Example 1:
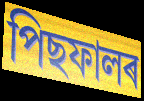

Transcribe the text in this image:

পিছফালৰ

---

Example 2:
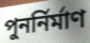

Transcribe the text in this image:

পুনৰ্নিৰ্মাণ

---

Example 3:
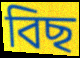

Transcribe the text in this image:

বিছ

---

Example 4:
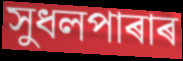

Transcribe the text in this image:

সুধলপাৰাৰ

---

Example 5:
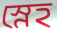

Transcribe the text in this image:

স্নেহ